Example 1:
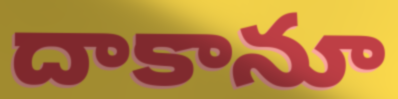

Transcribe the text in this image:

దాకానూ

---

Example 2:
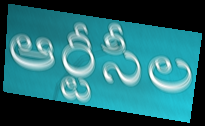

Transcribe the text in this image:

ఆర్టీసీల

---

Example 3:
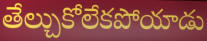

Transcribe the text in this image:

తేల్చుకోలేకపోయాడు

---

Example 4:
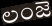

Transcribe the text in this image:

లంజె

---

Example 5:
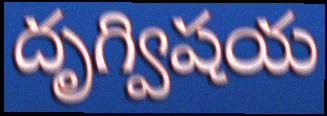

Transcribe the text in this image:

దృగ్విషయ